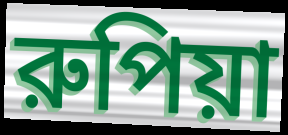
রুপিয়া